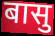
बासु